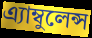
এ্যাম্বুলেন্স